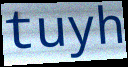
tuyh